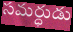
సమర్ధుడు